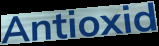
Antioxid